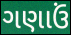
ગણાઉં